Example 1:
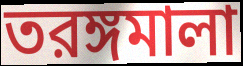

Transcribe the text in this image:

তরঙ্গমালা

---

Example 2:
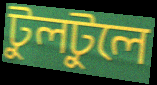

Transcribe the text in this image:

টুলটুলে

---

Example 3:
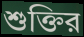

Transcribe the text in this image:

শুক্তির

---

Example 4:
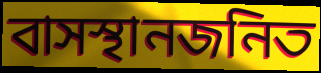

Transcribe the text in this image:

বাসস্থানজনিত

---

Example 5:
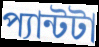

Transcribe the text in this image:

প্যান্টটা